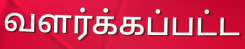
வளர்க்கப்பட்ட